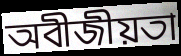
অবীজীয়তা